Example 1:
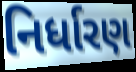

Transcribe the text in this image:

નિર્ધારણ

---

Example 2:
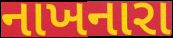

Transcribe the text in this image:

નાખનારા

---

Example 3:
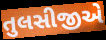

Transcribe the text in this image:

તુલસીજીએ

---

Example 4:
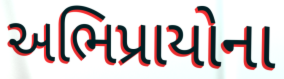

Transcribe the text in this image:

અભિપ્રાયોના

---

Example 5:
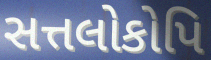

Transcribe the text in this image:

સત્તલોકોપિ